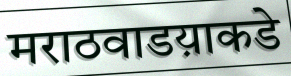
मराठवाडय़ाकडे